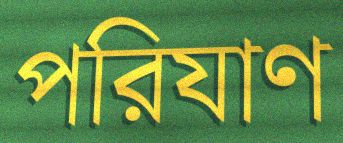
পরিযাণ